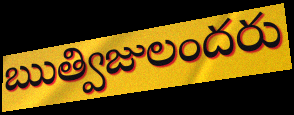
ఋత్విజులందరు